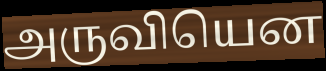
அருவியென